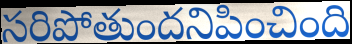
సరిపోతుందనిపించింది